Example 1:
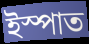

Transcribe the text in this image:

ইস্পাত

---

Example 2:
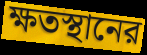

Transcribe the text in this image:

ক্ষতস্থানের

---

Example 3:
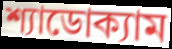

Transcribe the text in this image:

শ্যাডোক্যাম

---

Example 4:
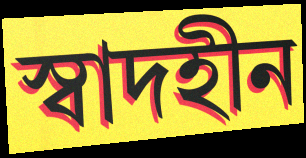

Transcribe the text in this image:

স্বাদহীন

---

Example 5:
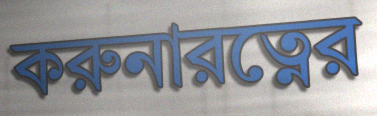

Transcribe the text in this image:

করুনারত্নের